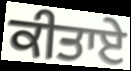
ਕੀਤਾਏ